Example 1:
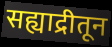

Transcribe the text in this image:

सह्याद्रीतून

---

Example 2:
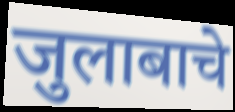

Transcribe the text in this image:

जुलाबाचे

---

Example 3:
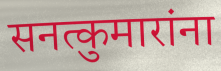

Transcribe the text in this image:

सनत्कुमारांना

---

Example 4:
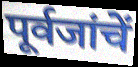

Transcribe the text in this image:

पूर्वजांचें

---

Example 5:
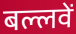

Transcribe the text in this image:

बल्लवें